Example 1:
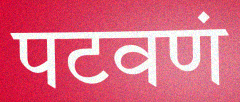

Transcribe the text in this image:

पटवणं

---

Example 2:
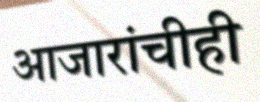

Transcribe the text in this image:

आजारांचीही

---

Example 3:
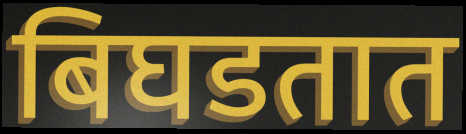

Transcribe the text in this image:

बिघडतात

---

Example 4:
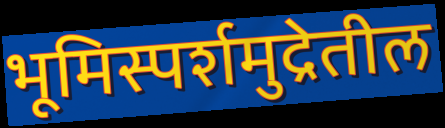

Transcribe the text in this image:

भूमिस्पर्शमुद्रेतील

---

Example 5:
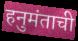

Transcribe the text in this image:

हनुमंताची